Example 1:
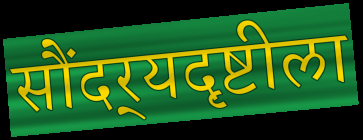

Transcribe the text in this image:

सौंदर्यदृष्टीला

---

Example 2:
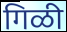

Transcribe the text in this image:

गिळी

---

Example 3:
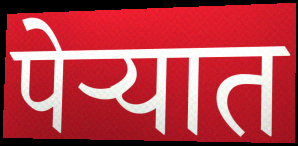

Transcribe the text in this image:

पेऱ्यात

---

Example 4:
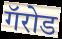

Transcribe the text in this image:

गॅरोड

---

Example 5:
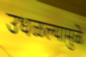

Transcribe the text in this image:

उधळल्यामुळे